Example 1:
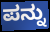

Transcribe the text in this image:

ಪನ್ನು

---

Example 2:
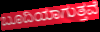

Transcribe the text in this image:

ಬೂದಿಯಾಗುತ್ತವೆ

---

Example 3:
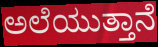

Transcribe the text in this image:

ಅಲೆಯುತ್ತಾನೆ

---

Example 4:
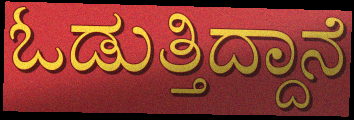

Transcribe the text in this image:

ಓಡುತ್ತಿದ್ದಾನೆ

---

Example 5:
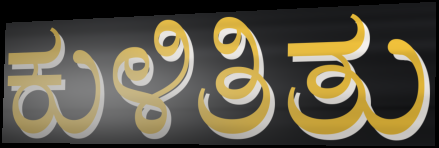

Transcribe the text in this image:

ಕುಳಿತಿತು